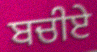
ਬਚੀਏ